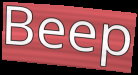
Beep